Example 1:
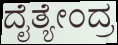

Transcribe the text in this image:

ದೈತ್ಯೇಂದ್ರ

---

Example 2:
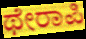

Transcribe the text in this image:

ಥೇರಾಪಿ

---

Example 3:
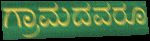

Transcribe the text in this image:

ಗ್ರಾಮದವರೂ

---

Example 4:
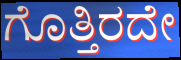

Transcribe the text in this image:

ಗೊತ್ತಿರದೇ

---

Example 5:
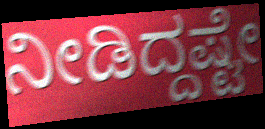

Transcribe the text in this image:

ನೀಡಿದ್ದಷ್ಟೇ